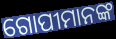
ଗୋପୀମାନଙ୍କ